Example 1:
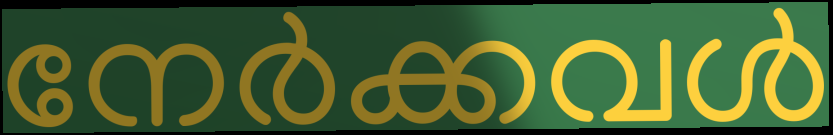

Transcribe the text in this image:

നേർക്കവൾ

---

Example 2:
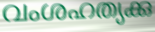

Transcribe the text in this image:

വംശഹത്യക്കു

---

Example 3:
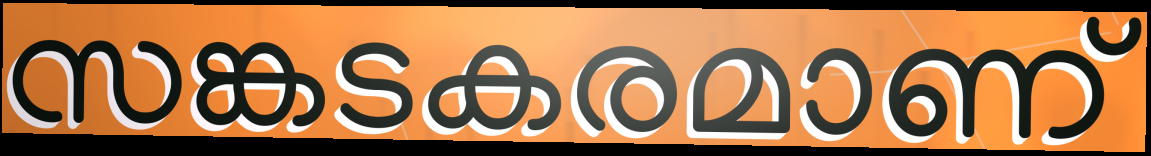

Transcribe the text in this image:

സങ്കടകരമാണ്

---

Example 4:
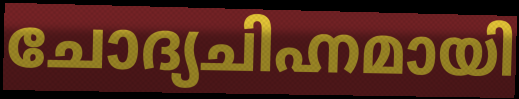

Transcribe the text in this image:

ചോദ്യചിഹ്നമായി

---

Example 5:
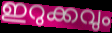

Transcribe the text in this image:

ഇറുക്കവും